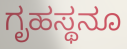
ಗೃಹಸ್ಥನೂ